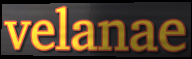
velanae